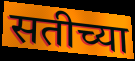
सतीच्या